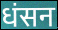
धंसन